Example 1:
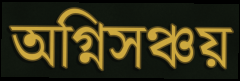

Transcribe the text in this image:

অগ্নিসঞ্চয়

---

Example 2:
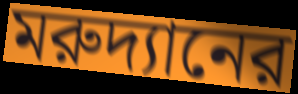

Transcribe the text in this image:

মরুদ্যানের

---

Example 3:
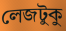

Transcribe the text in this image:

লেজটুকু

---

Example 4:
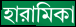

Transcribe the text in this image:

হারামিকা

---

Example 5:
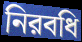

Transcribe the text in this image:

নিরবধি